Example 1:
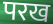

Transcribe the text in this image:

परख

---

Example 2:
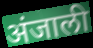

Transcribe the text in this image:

अंजाली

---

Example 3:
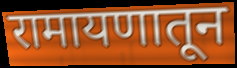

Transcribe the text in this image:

रामायणातून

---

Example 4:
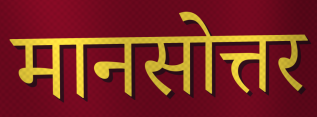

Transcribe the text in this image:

मानसोत्तर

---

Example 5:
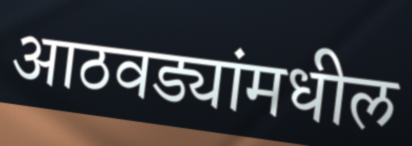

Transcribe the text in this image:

आठवड्यांमधील